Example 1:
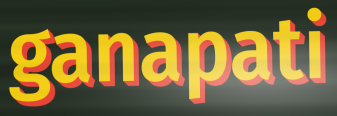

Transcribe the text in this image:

ganapati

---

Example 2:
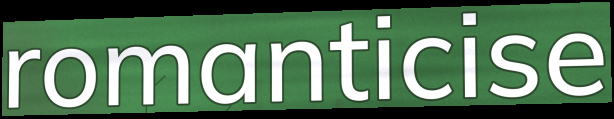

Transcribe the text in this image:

romanticise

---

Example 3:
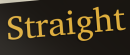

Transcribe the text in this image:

Straight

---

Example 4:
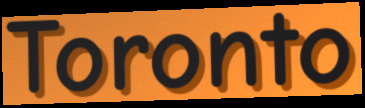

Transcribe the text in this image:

Toronto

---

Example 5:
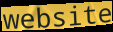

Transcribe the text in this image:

website